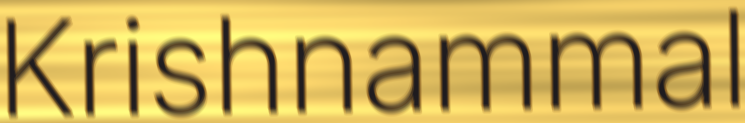
Krishnammal